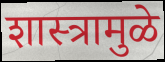
शास्त्रामुळे